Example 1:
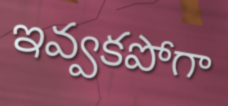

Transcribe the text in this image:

ఇవ్వకపోగా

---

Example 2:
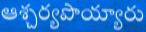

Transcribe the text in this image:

ఆశ్చర్యపొయ్యారు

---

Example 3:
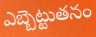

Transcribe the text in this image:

ఎబ్బెట్టుతనం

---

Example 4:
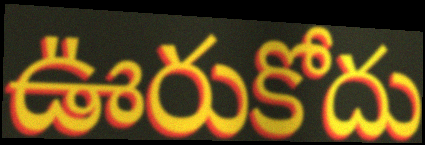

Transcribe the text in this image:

ఊరుకోదు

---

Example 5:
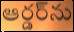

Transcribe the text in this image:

ఆర్డర్‌ను